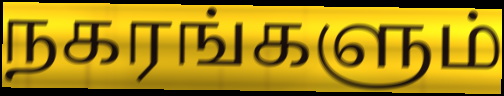
நகரங்களும்